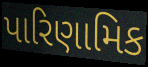
પારિણામિક